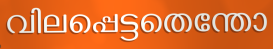
വിലപ്പെട്ടതെന്തോ